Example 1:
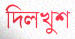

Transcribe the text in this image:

দিলখুশ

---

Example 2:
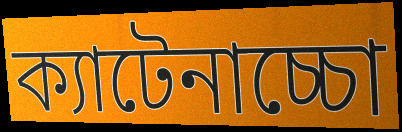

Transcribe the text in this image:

ক্যাটেনাচ্চো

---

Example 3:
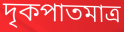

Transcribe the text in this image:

দৃকপাতমাত্র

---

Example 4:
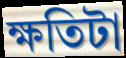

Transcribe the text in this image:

ক্ষতিটা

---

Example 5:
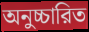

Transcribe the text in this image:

অনুচ্চারিত